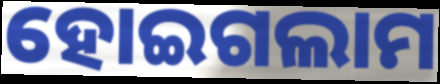
ହୋଇଗଲାମ